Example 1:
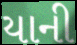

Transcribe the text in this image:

યાની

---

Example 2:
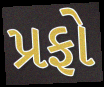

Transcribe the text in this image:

પ્રફો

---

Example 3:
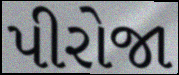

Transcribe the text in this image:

પીરોજા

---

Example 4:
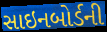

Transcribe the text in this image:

સાઇનબોર્ડની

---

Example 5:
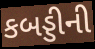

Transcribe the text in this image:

કબડ્ડીની